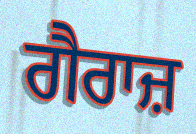
ਗੈਰਾਜ਼